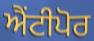
ਐਂਟੀਪੋਰ